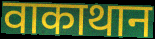
वाकाथान